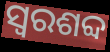
ସ୍ୱରଶବ୍ଦ